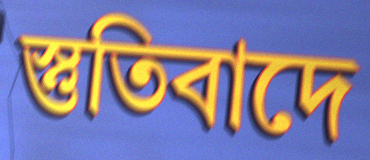
স্তুতিবাদে